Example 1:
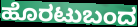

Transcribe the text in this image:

ಹೊರಟುಬಂದ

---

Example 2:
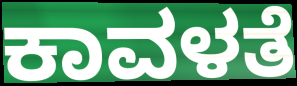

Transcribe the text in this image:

ಕಾವಳತೆ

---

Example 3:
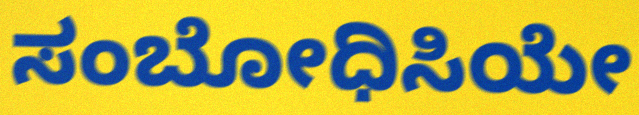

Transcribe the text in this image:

ಸಂಬೋಧಿಸಿಯೇ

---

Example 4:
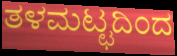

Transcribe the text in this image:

ತಳಮಟ್ಟದಿಂದ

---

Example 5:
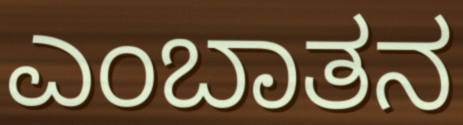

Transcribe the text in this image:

ಎಂಬಾತನ